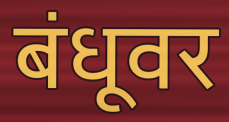
बंधूवर